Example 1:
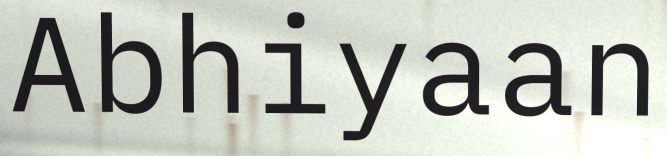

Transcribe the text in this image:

Abhiyaan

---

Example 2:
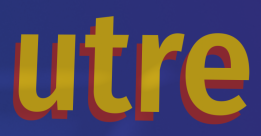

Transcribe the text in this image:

utre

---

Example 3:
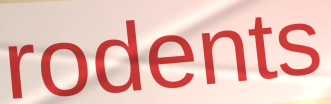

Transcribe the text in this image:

rodents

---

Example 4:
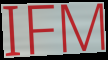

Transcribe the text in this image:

IFM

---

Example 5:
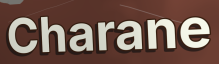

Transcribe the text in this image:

Charane